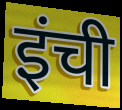
इंची